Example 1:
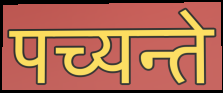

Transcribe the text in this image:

पच्यन्ते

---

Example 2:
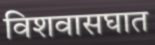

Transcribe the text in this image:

विशवासघात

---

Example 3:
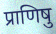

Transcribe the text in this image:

प्राणिषु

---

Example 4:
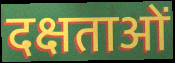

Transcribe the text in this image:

दक्षताओं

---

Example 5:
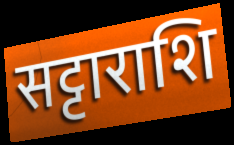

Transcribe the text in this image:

सट्टाराशि